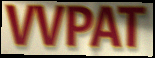
VVPAT